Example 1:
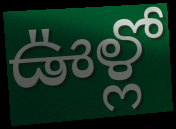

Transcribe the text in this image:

ఊళ్లో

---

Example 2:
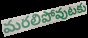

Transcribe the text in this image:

మరలిపోవుటకు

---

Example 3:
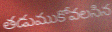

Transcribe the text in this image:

తడుముకోవలసిన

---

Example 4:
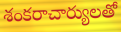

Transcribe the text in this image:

శంకరాచార్యులతో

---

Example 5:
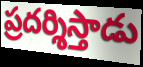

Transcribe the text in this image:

ప్రదర్శిస్తాడు